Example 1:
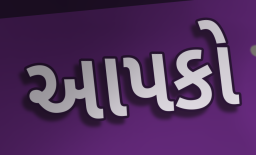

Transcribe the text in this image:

આપકો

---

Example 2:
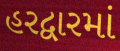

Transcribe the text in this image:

હરદ્વારમાં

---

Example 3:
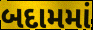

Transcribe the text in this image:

બદામમાં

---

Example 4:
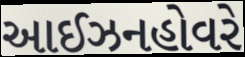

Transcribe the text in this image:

આઈઝનહોવરે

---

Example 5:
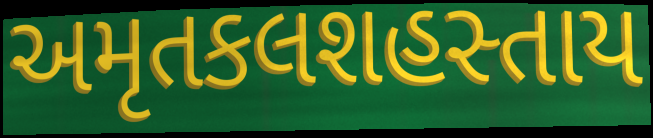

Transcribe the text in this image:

અમૃતકલશહસ્તાય